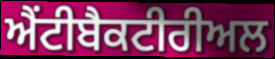
ਐਂਟੀਬੈਕਟੀਰੀਅਲ